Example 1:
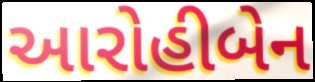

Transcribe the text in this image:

આરોહીબેન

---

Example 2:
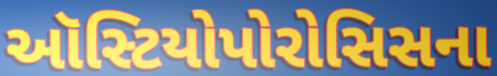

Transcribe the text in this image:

ઑસ્ટિયોપોરોસિસના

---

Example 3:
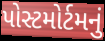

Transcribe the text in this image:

પોસ્ટમોર્ટમનું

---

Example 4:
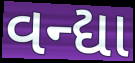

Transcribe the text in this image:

વન્દ્યા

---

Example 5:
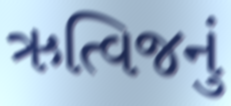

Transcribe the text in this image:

ઋત્વિજનું